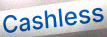
Cashless